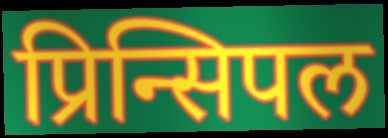
प्रिन्सिपल